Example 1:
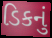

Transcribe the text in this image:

ડિકનું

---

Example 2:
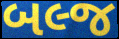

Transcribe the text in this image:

બલ્જ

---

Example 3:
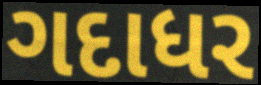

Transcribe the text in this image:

ગદાધર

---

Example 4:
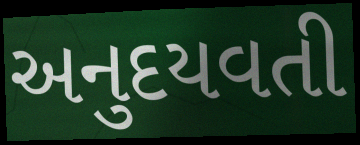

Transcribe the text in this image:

અનુદયવતી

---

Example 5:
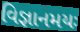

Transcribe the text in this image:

વિજ્ઞાનમયઃ